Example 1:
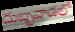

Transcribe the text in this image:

దుబ్బవాడలో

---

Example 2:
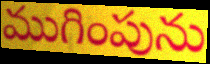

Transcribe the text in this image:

ముగింపును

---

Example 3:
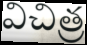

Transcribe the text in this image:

విచిత్ర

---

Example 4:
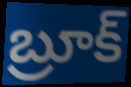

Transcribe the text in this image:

బ్రూక్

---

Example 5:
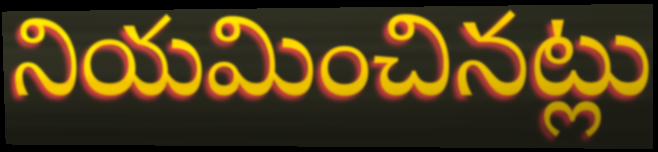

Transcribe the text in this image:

నియమించినట్లు